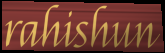
rahishun